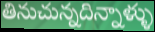
తినుచున్నదిన్నాళ్ళు